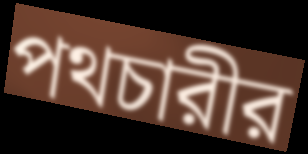
পথচারীর